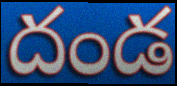
దండ